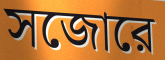
সজোরে